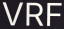
VRF